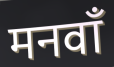
मनवाँ